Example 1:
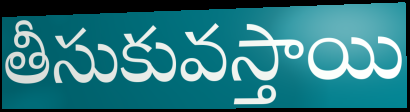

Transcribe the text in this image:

తీసుకువస్తాయి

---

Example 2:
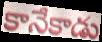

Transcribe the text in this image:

కానేకాడు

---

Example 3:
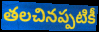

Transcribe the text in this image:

తలచినప్పటికీ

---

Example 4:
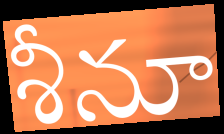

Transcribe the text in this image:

శీనూ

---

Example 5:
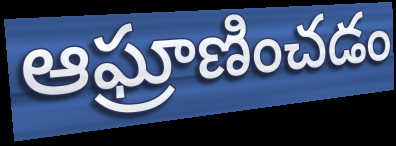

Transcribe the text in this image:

ఆఘ్రాణించడం